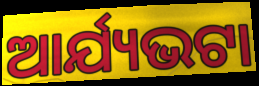
ଆର୍ଯ୍ୟଭଟା